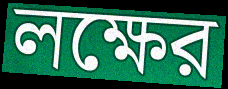
লক্ষের